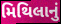
મિથિલાનું